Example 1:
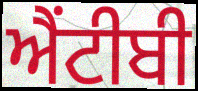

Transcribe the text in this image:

ਐਂਟੀਬੀ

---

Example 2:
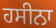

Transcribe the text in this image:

ਹਸੀਨਾ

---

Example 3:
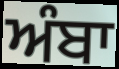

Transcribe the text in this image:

ਅੰਬਾ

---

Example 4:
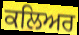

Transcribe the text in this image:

ਕਲਿਅਰ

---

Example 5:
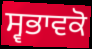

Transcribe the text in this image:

ਸ੍ਵਭਾਵਕੋ